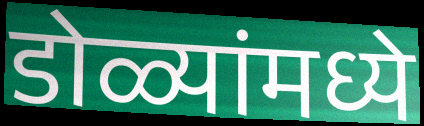
डोळ्यांमध्ये